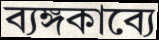
ব্যঙ্গকাব্যে